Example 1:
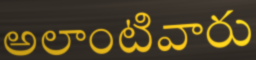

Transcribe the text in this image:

అలాంటివారు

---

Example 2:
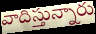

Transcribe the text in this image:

వాదిస్తున్నారు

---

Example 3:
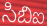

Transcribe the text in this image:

సిబిఐ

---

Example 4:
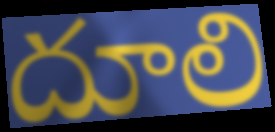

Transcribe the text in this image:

దూలి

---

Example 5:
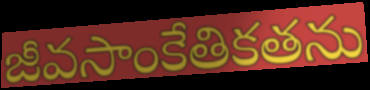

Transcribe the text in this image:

జీవసాంకేతికతను